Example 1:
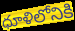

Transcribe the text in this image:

ధూళిలోనికి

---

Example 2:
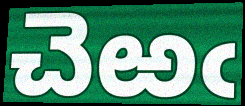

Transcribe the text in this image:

చెఱఁ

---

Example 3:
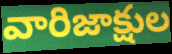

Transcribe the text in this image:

వారిజాక్షుల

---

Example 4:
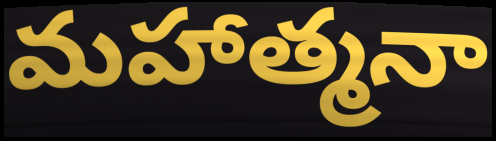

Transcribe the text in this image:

మహాత్మనా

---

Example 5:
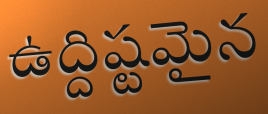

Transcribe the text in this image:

ఉద్దిష్టమైన